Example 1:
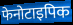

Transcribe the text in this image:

फेनोटाइपिक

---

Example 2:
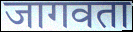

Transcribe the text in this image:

जागवता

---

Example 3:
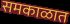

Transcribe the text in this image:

समकाळात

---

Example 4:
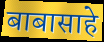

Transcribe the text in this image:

बाबासाहे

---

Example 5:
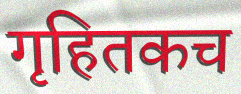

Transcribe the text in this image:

गृहितकच